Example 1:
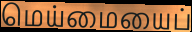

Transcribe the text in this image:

மெய்மையைப்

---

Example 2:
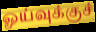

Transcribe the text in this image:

ஓய்வுக்குச்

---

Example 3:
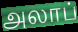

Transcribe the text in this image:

அலாப்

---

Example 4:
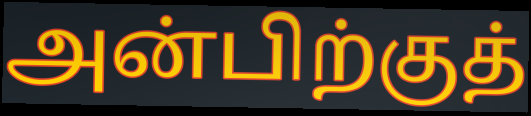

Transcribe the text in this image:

அன்பிற்குத்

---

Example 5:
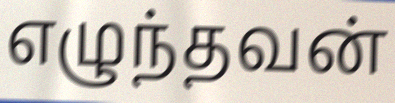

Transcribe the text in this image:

எழுந்தவன்